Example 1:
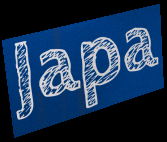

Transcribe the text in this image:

Japa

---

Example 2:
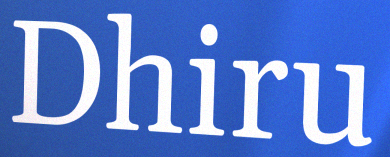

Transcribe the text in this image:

Dhiru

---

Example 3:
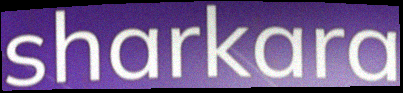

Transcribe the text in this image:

sharkara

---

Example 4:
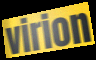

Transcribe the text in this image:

virion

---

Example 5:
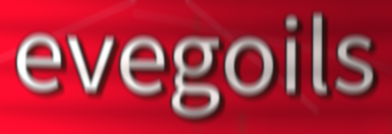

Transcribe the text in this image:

evegoils